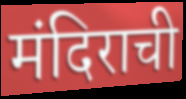
मंदिराची